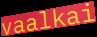
vaalkai